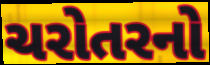
ચરોતરનો